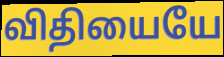
விதியையே